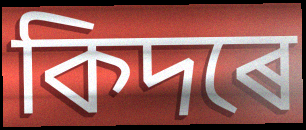
কিদৰে